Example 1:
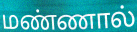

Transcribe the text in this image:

மண்ணால்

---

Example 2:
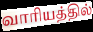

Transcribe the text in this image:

வாரியத்தில்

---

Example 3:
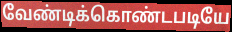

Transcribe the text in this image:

வேண்டிக்கொண்டபடியே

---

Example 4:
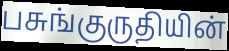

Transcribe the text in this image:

பசுங்குருதியின்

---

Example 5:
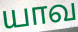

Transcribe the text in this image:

யாவ